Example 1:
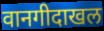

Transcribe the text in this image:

वानगीदाखल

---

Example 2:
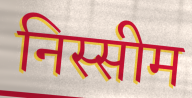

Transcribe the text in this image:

निस्सीम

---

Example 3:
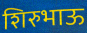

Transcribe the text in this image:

शिरुभाऊ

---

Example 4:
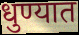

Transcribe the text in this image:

धुण्यात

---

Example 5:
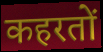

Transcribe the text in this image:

कहरतों